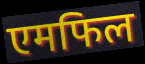
एमफिल